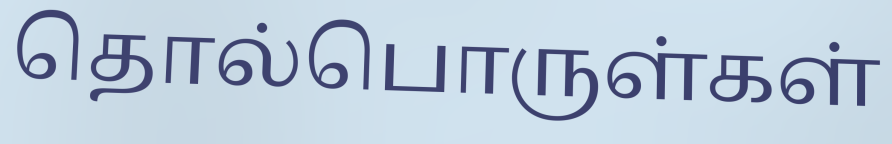
தொல்பொருள்கள்